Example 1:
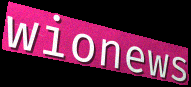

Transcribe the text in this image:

wionews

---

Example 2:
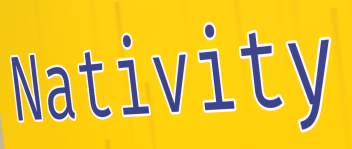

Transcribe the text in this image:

Nativity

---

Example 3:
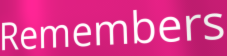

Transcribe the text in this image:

Remembers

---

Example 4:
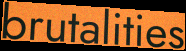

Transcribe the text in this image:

brutalities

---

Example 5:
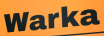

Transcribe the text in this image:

Warka